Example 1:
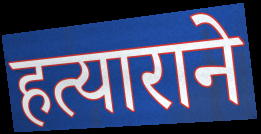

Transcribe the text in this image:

हत्याराने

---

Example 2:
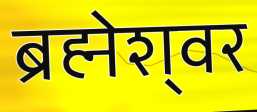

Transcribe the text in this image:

ब्रह्मेश्वर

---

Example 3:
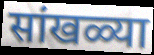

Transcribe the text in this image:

सांखळ्या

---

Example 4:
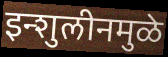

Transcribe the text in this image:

इन्शुलीनमुळे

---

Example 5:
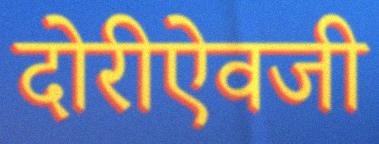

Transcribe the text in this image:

दोरीऐवजी